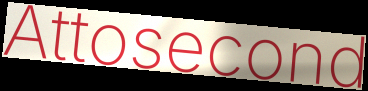
Attosecond